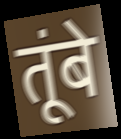
तूंबे